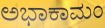
ಅಭಾಕಾಮಂ